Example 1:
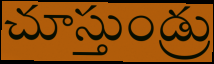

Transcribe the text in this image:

చూస్తుండ్రు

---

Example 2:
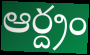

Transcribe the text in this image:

ఆర్ద్రం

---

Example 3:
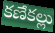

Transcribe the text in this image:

కణేకల్లు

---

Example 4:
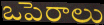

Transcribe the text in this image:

ఒపెరాలు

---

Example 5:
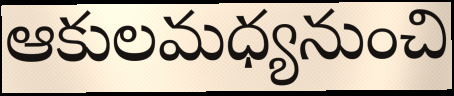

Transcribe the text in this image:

ఆకులమధ్యనుంచి